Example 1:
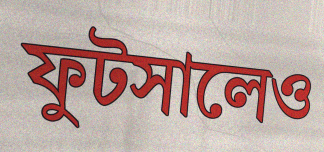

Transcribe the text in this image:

ফুটসালেও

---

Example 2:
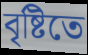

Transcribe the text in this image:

বৃষ্টিতে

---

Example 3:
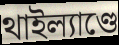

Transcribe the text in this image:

থাইল্যাণ্ডে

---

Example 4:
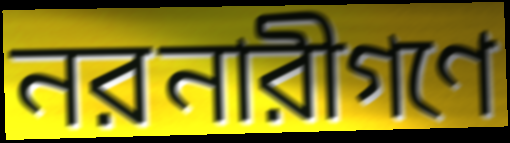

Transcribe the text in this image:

নরনারীগণে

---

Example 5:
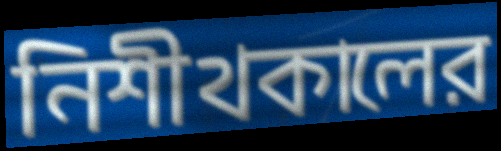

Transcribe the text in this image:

নিশীথকালের